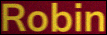
Robin